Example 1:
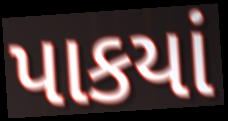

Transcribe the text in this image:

પાકયાં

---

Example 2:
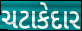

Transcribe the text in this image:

ચટાકેદાર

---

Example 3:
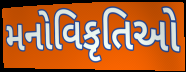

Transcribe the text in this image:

મનોવિકૃતિઓ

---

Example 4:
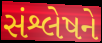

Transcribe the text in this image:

સંશ્લેષને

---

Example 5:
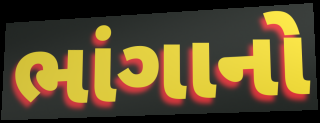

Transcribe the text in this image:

ભાંગાનો